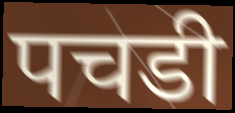
पचडी